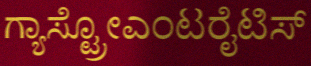
ಗ್ಯಾಸ್ಟ್ರೋಎಂಟರೈಟಿಸ್